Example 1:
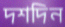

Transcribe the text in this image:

দশদিন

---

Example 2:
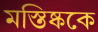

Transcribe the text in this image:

মস্তিষ্ককে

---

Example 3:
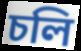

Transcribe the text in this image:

চলি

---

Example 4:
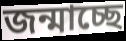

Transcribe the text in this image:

জন্মাচ্ছে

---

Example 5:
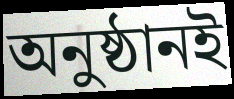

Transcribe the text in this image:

অনুষ্ঠানই